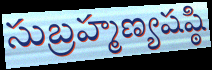
సుబ్రహ్మణ్యషష్ఠి